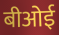
बीओई